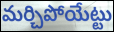
మర్చిపోయేట్టు